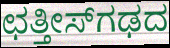
ಛತ್ತೀಸ್‌ಗಢದ